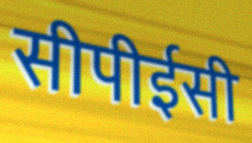
सीपीईसी